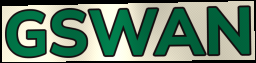
GSWAN